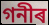
গনীৰ